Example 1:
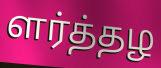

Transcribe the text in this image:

ளர்த்தழ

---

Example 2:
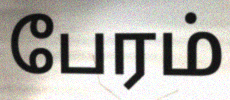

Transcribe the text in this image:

பேரம்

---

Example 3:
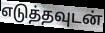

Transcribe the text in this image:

எடுத்தவுடன்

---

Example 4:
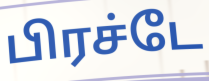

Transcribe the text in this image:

பிரச்டே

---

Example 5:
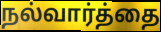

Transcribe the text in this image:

நல்வார்த்தை